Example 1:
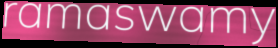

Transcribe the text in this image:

ramaswamy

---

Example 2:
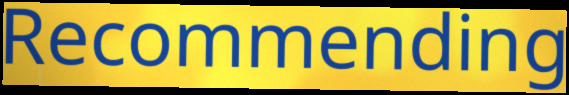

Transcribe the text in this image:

Recommending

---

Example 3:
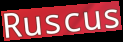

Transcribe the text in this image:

Ruscus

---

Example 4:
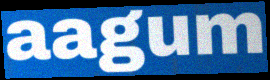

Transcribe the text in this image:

aagum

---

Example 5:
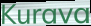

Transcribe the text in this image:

Kurava